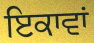
ਇਕਾਵਾਂ